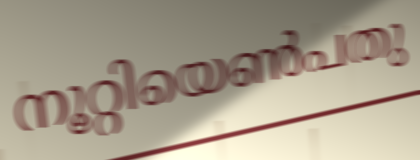
നൂറ്റിയെൺപതു